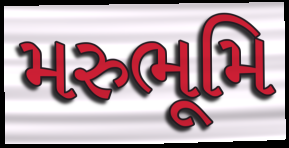
મરુભૂમિ